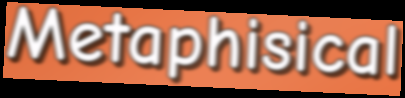
Metaphisical